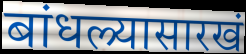
बांधल्यासारखं